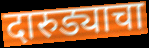
दारुड्याचा